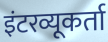
इंटरव्यूकर्ता